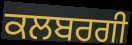
ਕਲਬਰਗੀ